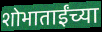
शोभाताईंच्या